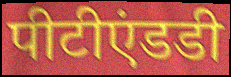
पीटीएंडडी